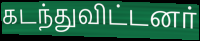
கடந்துவிட்டனர்